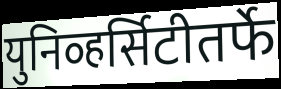
युनिव्हर्सिटीतर्फे